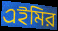
এইমির